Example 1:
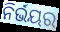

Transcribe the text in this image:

ନିର୍ଭୟର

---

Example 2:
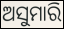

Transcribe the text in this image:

ଅସୁମାରି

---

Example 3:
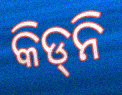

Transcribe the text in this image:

କିଡ୍‌ନି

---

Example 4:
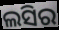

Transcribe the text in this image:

ଲସିର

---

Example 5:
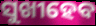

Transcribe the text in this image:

ସୁଖୀହେବ